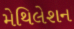
મેથિલેશન